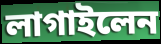
লাগাইলেন